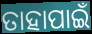
ତାହାପାଇଁ